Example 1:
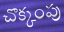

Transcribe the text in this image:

చొక్కంపు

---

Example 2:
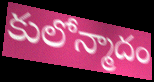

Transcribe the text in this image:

కులోన్మాదం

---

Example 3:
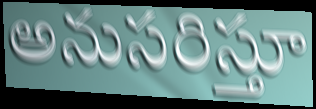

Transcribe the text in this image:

అనుసరిస్తూ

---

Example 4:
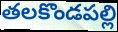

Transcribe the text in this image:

తలకొండపల్లి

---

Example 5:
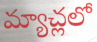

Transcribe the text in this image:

మ్యాచ్లలో